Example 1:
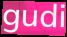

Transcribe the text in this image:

gudi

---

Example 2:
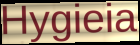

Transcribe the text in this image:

Hygieia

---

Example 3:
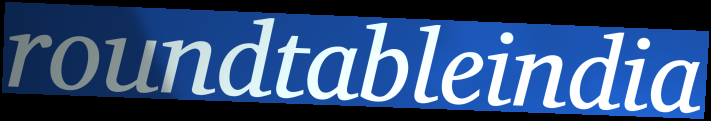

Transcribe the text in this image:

roundtableindia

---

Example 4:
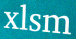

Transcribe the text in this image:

xlsm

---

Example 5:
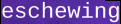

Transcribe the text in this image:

eschewing